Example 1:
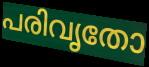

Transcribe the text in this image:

പരിവൃതോ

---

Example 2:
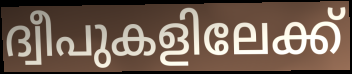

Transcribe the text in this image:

ദ്വീപുകളിലേക്ക്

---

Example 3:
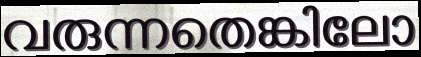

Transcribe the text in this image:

വരുന്നതെങ്കിലോ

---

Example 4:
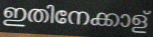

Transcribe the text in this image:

ഇതിനേക്കാള്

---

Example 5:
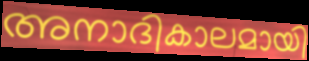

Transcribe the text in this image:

അനാദികാലമായി